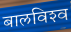
बालविश्व